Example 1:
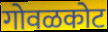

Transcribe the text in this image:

गोवळकोट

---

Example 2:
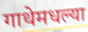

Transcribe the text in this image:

गाथेमधल्या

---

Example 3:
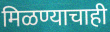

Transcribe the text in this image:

मिळण्याचाही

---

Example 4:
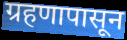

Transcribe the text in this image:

ग्रहणापासून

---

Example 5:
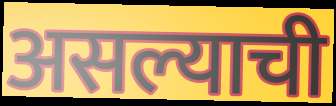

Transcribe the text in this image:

असल्याची